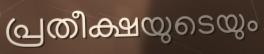
പ്രതീക്ഷയുടെയും